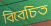
বিবেচিত